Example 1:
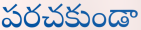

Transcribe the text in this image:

పరచకుండా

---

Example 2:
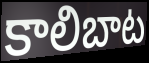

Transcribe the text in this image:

కాలిబాట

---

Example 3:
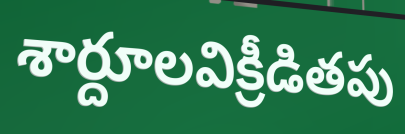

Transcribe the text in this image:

శార్దూలవిక్రీడితపు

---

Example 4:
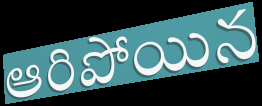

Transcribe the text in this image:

ఆరిపోయిన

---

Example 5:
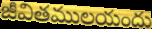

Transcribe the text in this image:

జీవితములయందు